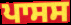
ਪਾਸਸ